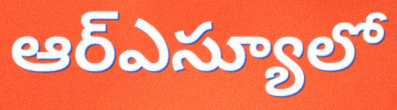
ఆర్ఎస్యూలో